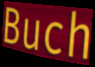
Buch